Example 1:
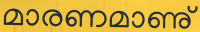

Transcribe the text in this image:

മാരണമാണു്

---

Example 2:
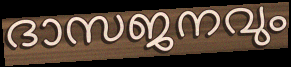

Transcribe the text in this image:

ദാസജനവും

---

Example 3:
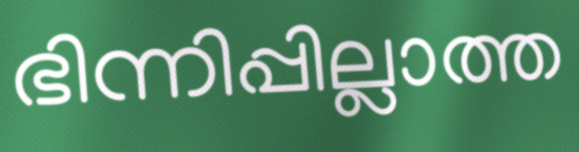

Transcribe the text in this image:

ഭിന്നിപ്പില്ലാത്ത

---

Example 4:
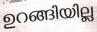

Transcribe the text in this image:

ഉറങ്ങിയില്ല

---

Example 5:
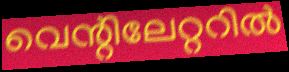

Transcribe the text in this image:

വെന്റിലേറ്ററിൽ